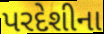
પરદેશીના